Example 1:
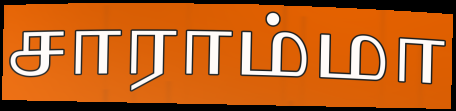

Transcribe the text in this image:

சாராம்மா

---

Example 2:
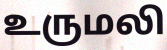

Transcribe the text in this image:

உருமலி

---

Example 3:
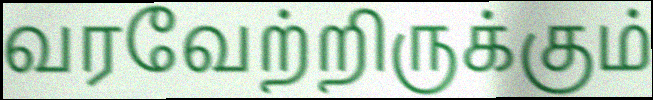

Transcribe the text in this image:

வரவேற்றிருக்கும்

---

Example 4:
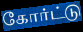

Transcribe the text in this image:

கோர்ட்டு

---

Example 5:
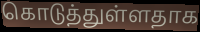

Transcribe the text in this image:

கொடுத்துள்ளதாக